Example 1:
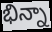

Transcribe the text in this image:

భిన్నా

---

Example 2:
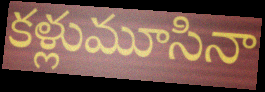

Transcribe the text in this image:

కళ్లుమూసినా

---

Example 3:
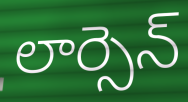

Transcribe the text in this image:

లార్సెన్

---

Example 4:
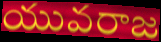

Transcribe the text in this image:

యువరాజ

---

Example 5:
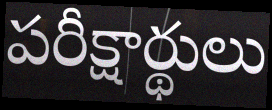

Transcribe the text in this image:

పరీక్షార్థులు